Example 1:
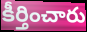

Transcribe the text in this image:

కీర్తించారు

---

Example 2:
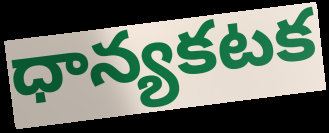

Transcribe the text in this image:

ధాన్యకటక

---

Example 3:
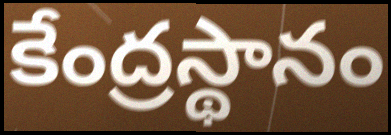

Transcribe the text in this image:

కేంద్రస్థానం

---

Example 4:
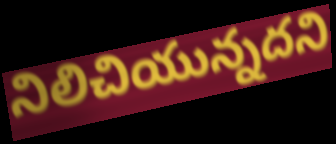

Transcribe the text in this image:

నిలిచియున్నదని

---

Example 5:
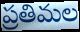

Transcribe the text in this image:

ప్రతిమల